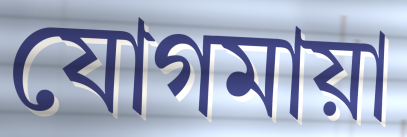
যোগমায়া